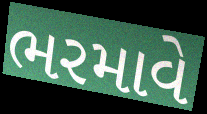
ભરમાવે